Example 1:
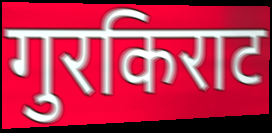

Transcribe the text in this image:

गुरकिराट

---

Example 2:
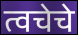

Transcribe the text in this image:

त्वचेचे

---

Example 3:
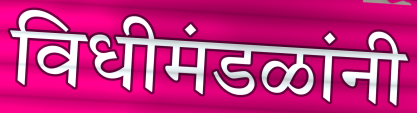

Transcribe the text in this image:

विधीमंडळांनी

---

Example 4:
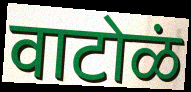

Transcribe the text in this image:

वाटोळं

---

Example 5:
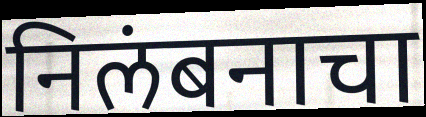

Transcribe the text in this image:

निलंबनाचा